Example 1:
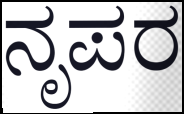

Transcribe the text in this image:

ನೃಪರ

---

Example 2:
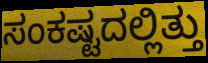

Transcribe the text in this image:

ಸಂಕಷ್ಟದಲ್ಲಿತ್ತು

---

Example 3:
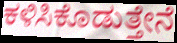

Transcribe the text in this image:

ಕಳಿಸಿಕೊಡುತ್ತೇನೆ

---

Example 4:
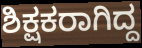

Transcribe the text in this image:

ಶಿಕ್ಷಕರಾಗಿದ್ದ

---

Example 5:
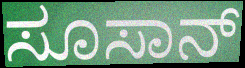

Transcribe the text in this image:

ಸೂಸಾನ್